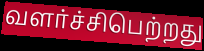
வளர்ச்சிபெற்றது